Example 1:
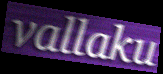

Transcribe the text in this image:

vallaku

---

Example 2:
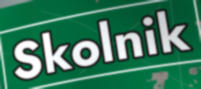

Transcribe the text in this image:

Skolnik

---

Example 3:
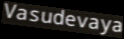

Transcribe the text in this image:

Vasudevaya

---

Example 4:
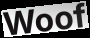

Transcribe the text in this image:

Woof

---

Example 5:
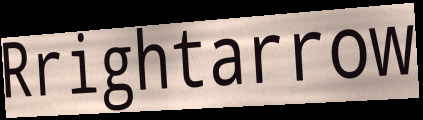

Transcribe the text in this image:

Rrightarrow